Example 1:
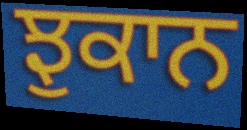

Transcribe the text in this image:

ਝੁਕਾਨ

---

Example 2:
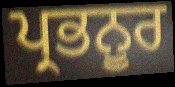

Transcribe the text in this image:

ਪ੍ਰਭਨੂਰ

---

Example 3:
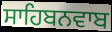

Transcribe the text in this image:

ਸਾਹਿਬਨਵਾਬ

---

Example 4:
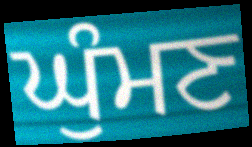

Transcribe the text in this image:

ਘੁੰਮਣ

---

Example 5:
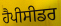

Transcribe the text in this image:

ਹੈਪੀਸੀਡਰ